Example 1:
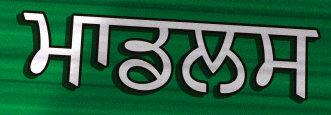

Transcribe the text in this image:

ਮਾਡਲਸ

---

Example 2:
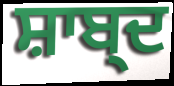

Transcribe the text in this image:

ਸ਼ਾਬ੍ਦ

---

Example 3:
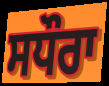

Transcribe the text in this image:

ਸਧੌਰਾ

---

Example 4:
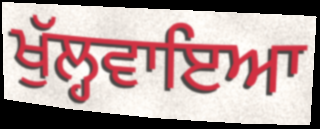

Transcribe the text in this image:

ਖੁੱਲ੍ਹਵਾਇਆ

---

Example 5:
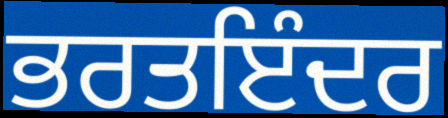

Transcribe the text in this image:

ਭਰਤਇੰਦਰ